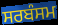
ਸਰਬੰਸਮ